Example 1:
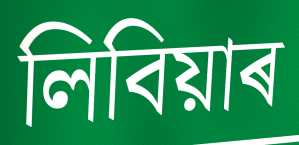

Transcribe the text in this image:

লিবিয়াৰ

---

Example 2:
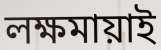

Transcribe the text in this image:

লক্ষমায়াই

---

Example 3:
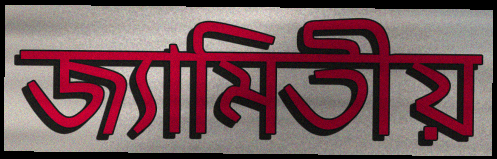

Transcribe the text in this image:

জ্যামিতীয়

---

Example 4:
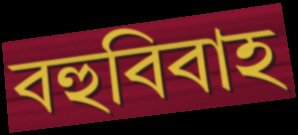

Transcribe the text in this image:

বহুবিবাহ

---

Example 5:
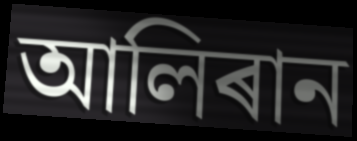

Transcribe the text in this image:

আলিৰান